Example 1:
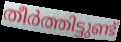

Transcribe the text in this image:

തീർത്തിട്ടുണ്ട്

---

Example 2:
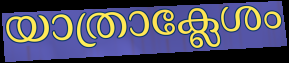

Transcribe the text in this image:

യാത്രാക്ലേശം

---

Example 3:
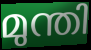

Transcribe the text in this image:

മുന്തി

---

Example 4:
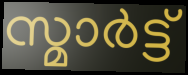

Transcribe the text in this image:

സ്മാർട്ട്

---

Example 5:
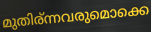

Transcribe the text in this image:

മുതിര്ന്നവരുമൊക്കെ